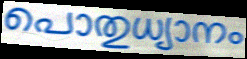
പൊതുധ്യാനം